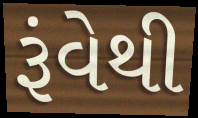
રૂંવેથી